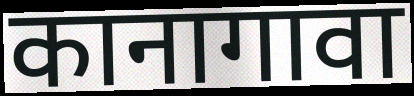
कानागावा